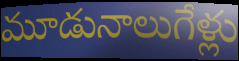
మూడునాలుగేళ్లు